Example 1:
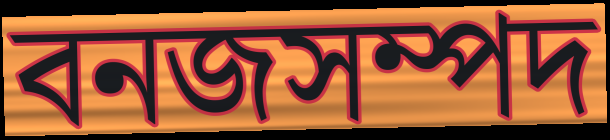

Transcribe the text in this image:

বনজসম্পদ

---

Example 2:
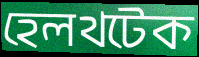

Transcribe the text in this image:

হেলথটেক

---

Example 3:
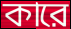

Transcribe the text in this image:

কারে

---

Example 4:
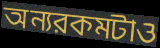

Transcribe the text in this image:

অন্যরকমটাও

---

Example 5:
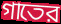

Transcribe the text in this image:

গাতের